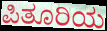
ಪಿತೂರಿಯ